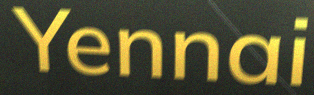
Yennai